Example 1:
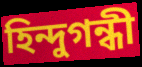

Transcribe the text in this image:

হিন্দুগন্ধী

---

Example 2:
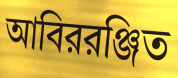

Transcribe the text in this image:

আবিররঞ্জিত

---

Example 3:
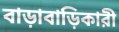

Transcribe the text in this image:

বাড়াবাড়িকারী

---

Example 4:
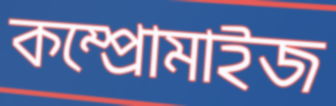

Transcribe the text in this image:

কম্প্রোমাইজ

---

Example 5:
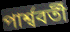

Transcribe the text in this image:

পার্শ্ববর্তী